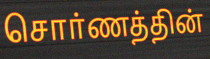
சொர்ணத்தின்